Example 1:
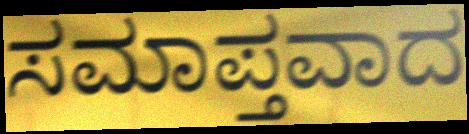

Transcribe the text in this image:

ಸಮಾಪ್ತವಾದ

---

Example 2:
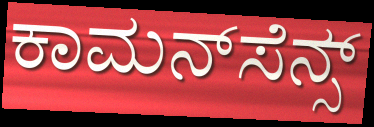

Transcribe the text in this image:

ಕಾಮನ್‌ಸೆನ್ಸ್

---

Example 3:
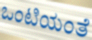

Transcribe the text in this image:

ಒಂಟಿಯಂತೆ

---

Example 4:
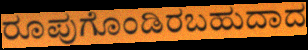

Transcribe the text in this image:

ರೂಪುಗೊಂಡಿರಬಹುದಾದ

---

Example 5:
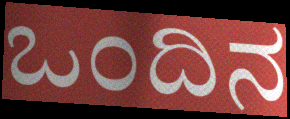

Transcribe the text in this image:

ಒಂದಿನ